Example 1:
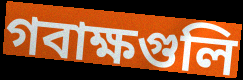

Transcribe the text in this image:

গবাক্ষগুলি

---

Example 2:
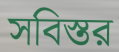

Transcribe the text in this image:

সবিস্তর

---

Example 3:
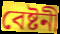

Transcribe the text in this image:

বেষ্টনী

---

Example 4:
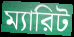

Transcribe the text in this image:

ম্যারিট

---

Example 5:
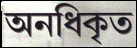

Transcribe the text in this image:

অনধিকৃত